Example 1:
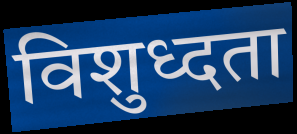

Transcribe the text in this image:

विशुध्दता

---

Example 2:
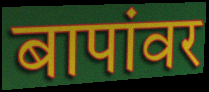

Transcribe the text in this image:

बापांवर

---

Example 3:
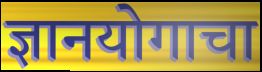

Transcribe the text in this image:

ज्ञानयोगाचा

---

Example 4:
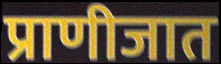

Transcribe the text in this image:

प्राणीजात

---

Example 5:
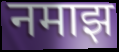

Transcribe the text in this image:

नमाझ